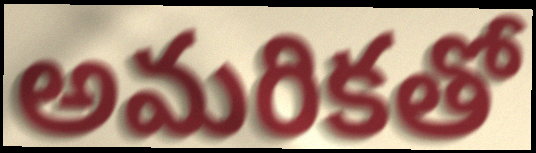
అమరికతో